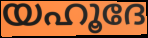
യഹൂദേ